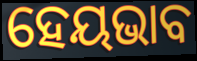
ହେୟଭାବ